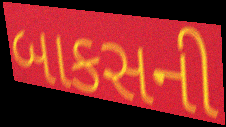
બાકસની